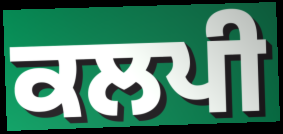
ਕਲਪੀ